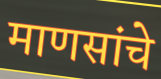
माणसांचे